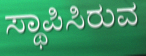
ಸ್ಥಾಪಿಸಿರುವ